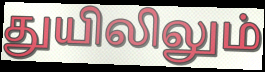
துயிலிலும்